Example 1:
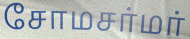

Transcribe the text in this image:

சோமசர்மர்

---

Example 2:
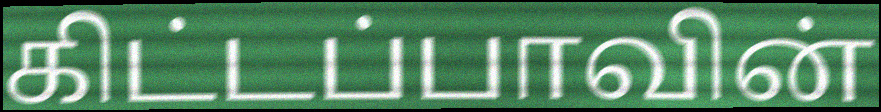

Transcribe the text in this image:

கிட்டப்பாவின்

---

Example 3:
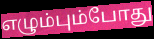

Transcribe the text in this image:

எழும்பும்போது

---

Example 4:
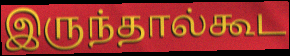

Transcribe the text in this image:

இருந்தால்கூட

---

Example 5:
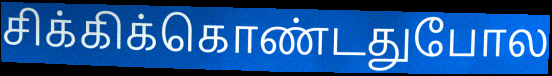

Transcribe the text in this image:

சிக்கிக்கொண்டதுபோல